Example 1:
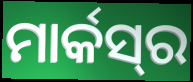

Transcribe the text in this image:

ମାର୍କସ୍‍ର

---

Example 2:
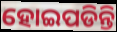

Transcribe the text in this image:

ହୋଇପଡିନ୍ତି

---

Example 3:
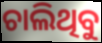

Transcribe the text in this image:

ଚାଲିଥିବୁ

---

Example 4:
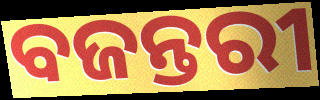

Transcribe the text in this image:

ବଜନ୍ତରୀ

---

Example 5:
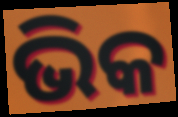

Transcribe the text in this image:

ଭିକ